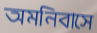
অমনিবাসে